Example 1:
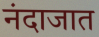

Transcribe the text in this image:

नंदाजात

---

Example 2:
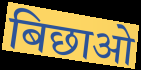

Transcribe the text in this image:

बिछाओ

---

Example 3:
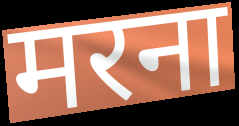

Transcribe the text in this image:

मरना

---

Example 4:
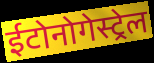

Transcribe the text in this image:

ईटोनोगेस्ट्रेल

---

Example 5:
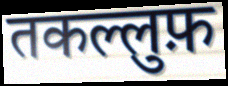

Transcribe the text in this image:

तकल्लुफ़